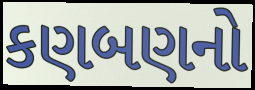
કણબણનો